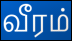
வீரம்